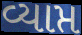
વ્યાપ્ત